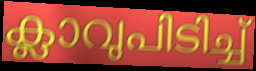
ക്ലാവുപിടിച്ച്